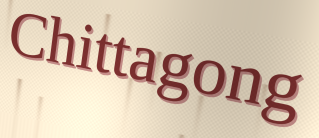
Chittagong